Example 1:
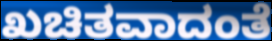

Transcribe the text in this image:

ಖಚಿತವಾದಂತೆ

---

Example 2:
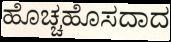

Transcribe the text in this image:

ಹೊಚ್ಚಹೊಸದಾದ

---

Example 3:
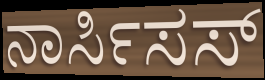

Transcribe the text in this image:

ನಾರ್ಸಿಸಸ್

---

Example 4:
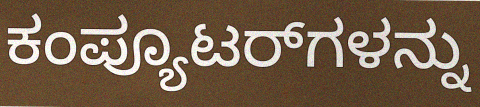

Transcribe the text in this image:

ಕಂಪ್ಯೂಟರ್‌ಗಳನ್ನು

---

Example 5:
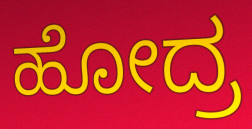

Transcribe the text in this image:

ಹೋದ್ರ